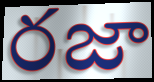
రజా